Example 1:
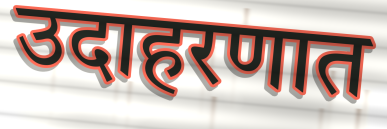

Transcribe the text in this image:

उदाहरणात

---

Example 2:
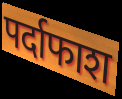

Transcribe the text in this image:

पर्दाफाश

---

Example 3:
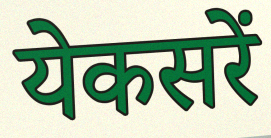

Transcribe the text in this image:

येकसरें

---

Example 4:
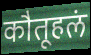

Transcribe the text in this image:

कौतूहलं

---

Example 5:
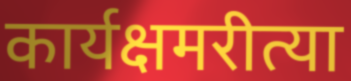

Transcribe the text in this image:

कार्यक्षमरीत्या